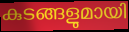
കുടങ്ങളുമായി